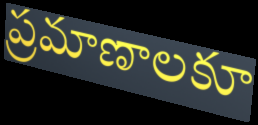
ప్రమాణాలకూ